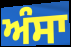
ਅੰਸਾ